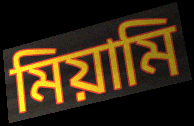
মিয়ামি